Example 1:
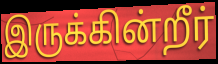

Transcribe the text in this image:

இருக்கின்றீர்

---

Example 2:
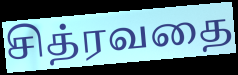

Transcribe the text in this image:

சித்ரவதை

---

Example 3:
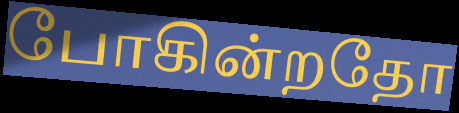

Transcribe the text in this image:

போகின்றதோ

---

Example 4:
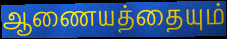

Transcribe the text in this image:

ஆணையத்தையும்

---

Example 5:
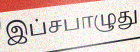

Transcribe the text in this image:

இப்சபாழுது